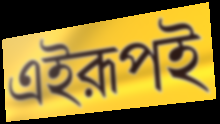
এইরূপই